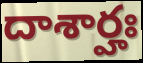
దాశార్హః